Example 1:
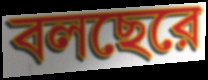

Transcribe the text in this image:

বলছেরে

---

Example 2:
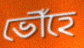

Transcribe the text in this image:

ভৌঁহে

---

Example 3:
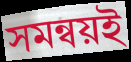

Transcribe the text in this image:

সমন্বয়ই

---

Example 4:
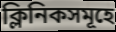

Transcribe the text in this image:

ক্লিনিকসমূহে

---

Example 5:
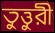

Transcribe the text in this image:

তুত্তুরী